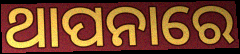
ଥାପନାରେ